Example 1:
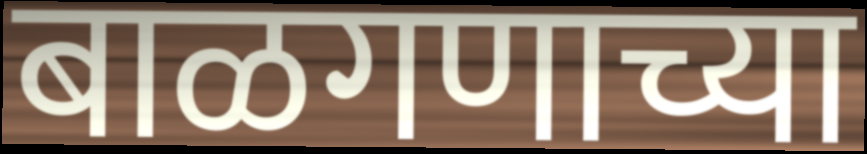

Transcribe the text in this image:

बाळगणाच्या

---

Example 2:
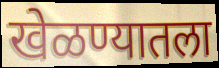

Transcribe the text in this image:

खेळण्यातला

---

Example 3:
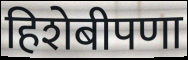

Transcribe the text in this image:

हिशेबीपणा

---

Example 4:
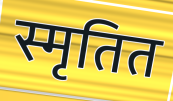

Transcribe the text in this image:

स्मृतित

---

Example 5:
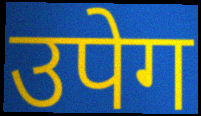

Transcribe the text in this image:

उपेग